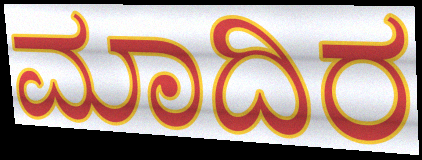
ಮಾದಿರ